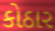
કોઠાર